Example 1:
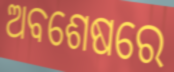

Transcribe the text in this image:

ଅବଶେଷରେ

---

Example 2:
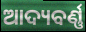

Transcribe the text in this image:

ଆଦ୍ୟବର୍ଣ୍ଣ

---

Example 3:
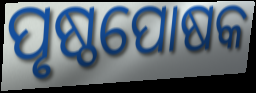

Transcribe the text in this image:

ପୃଷ୍ଠପୋଷକ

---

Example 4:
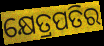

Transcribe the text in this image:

କ୍ଷେତ୍ରପତିର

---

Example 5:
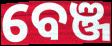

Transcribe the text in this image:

ବେଞ୍ଜ